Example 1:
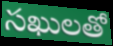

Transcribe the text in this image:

సఖులతో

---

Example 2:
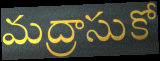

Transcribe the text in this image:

మద్రాసుకో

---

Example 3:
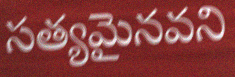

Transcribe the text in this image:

సత్యమైనవని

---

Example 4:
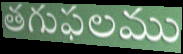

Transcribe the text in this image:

తగుఫలము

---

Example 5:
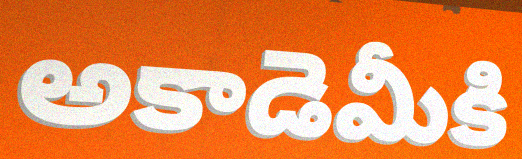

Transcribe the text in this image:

అకాడెమీకి